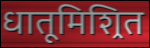
धातूमिश्रित